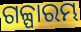
ଗଳ୍ପାରମ୍ଭ